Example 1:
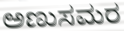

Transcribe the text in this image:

ಅಣುಸಮರ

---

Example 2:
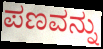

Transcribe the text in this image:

ಪಣವನ್ನು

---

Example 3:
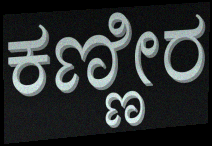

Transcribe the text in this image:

ಕಣ್ಣೀರ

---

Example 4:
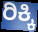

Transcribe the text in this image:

ರಿಕ್ಕಿ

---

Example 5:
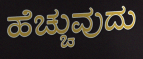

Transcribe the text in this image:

ಹೆಚ್ಚುವುದು